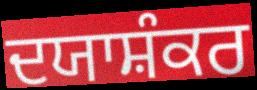
ਦਯਾਸ਼ੰਕਰ